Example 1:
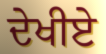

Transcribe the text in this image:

ਦੇਖੀਏ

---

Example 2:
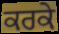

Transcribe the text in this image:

ਕਰਕੇ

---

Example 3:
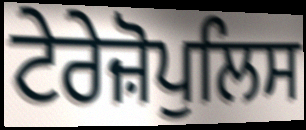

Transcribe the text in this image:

ਟੇਰੇਜ਼ੋਪੁਲਿਸ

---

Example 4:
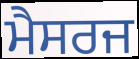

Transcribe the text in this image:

ਮੈਸਰਜ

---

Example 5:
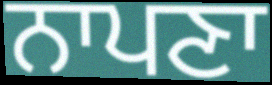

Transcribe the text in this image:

ਨਾਪਣਾ